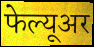
फेल्यूअर